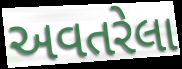
અવતરેલા